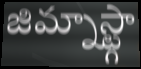
జిమ్నాస్ట్గా